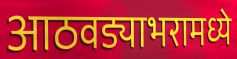
आठवड्याभरामध्ये